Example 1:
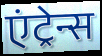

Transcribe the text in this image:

एंट्रेन्स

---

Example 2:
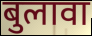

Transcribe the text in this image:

बुलावा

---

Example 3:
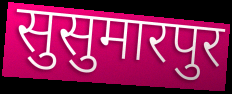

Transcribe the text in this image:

सुसुमारपुर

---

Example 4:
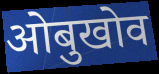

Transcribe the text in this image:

ओबुखोव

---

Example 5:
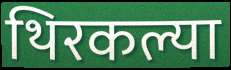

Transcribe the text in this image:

थिरकल्या